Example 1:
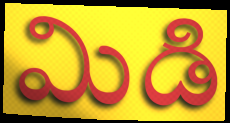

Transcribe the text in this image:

మిడి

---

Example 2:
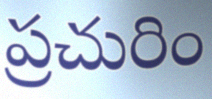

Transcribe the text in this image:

ప్రచురిం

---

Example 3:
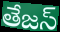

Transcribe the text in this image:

తేజస్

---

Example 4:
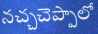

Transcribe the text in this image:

నచ్చచెప్పాలో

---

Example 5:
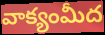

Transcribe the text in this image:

వాక్యంమీద